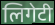
लिगेटी